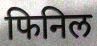
फिनिल